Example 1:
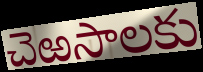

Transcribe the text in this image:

చెఱసాలకు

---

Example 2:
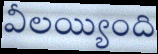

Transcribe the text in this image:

వీలయ్యింది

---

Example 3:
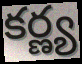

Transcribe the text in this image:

కర్ణ్య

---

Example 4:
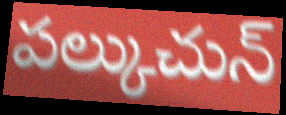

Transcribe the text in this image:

పల్కుచున్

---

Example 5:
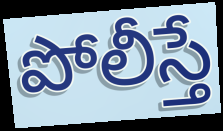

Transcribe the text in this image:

పోలీస్తే